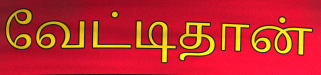
வேட்டிதான்